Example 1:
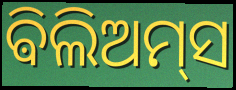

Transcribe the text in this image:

ଵିଲିଅମ୍‌ସ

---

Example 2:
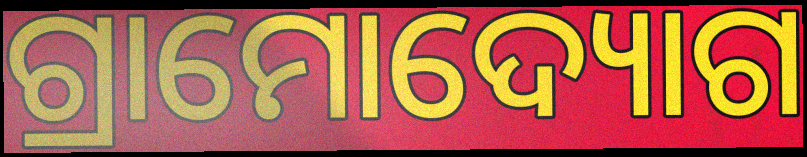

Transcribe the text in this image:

ଗ୍ରାମୋଦ୍ୟୋଗ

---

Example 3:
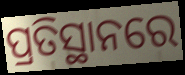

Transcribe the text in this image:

ପ୍ରତିସ୍ଥାନରେ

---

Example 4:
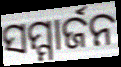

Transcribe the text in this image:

ସମ୍ମାର୍ଜନ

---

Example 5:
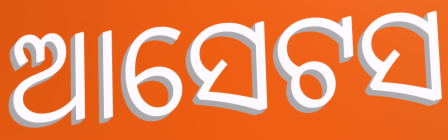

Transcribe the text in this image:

ଆସେଟସ